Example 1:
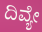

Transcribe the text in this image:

ದಿವ್ಯೇ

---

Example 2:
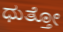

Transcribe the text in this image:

ಧುತ್ತೋ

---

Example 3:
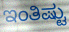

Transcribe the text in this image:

ಇಂತಿಷ್ಟು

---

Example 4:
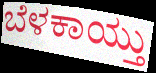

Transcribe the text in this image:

ಬೆಳಕಾಯ್ತು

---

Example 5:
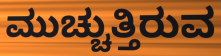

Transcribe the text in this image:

ಮುಚ್ಚುತ್ತಿರುವ